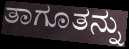
ತಾಗೂತನ್ನು